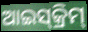
ଆଇସ୍‍କ୍ରିମ୍